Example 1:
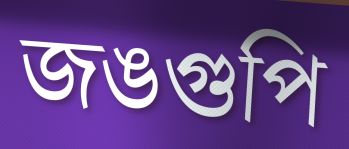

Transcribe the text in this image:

জঙগুপি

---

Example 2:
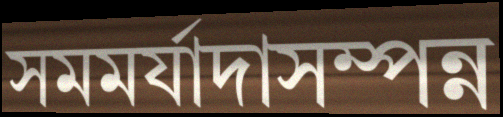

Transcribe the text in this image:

সমমর্যাদাসম্পন্ন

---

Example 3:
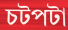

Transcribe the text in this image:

চটপটা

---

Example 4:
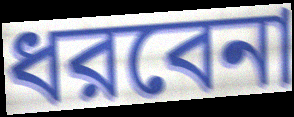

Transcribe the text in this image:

ধরবেনা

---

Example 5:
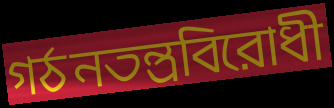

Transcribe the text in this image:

গঠনতন্ত্রবিরোধী